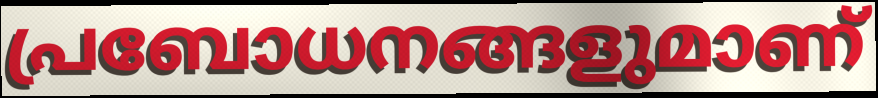
പ്രബോധനങ്ങളുമാണ്